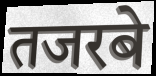
तजरबे